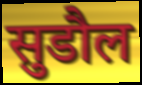
सुडौल